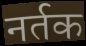
नर्तक